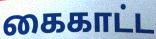
கைகாட்ட